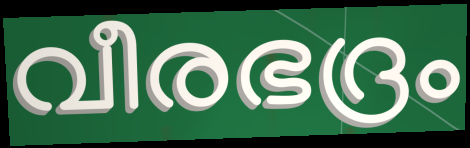
വീരഭദ്രം